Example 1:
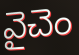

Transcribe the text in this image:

వైచెం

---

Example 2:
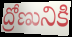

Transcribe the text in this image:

ద్రోణునికి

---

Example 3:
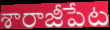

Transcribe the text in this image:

శారాజీపేట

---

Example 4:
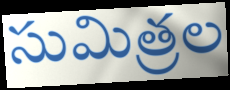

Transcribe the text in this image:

సుమిత్రల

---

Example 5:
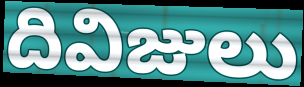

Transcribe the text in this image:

దివిజులు